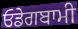
ਓਡੇਗਬਾਮੀ